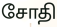
சோதி